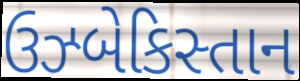
ઉઝ્બેકિસ્તાન